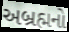
અબ્રહ્મનો